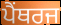
ਪੈਂਥਰਜ